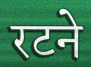
रटने